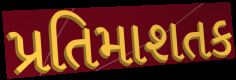
પ્રતિમાશતક